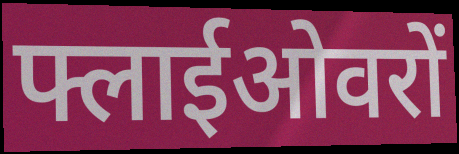
फ्लाईओवरों